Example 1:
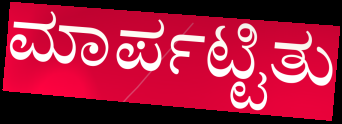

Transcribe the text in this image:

ಮಾರ್ಪಟ್ಟಿತು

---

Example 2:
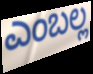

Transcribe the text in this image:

ಎಂಬಲ್ಲ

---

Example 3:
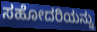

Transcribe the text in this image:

ಸಹೋದರಿಯನ್ನು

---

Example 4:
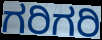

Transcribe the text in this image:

ಗರಿಗರಿ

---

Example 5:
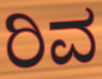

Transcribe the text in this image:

ರಿವ